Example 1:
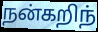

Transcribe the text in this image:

நன்கறிந்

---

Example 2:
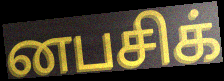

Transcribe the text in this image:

னபசிக்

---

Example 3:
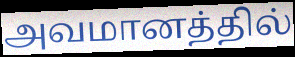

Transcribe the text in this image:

அவமானத்தில்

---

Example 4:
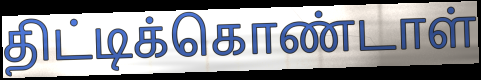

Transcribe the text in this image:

திட்டிக்கொண்டாள்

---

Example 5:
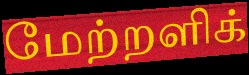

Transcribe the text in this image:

மேற்றளிக்